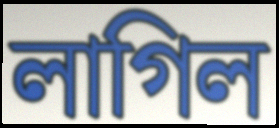
লাগিল